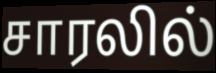
சாரலில்